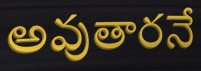
అవుతారనే